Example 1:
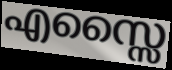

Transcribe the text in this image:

എസ്സൈ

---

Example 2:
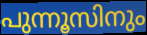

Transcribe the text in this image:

പുന്നൂസിനും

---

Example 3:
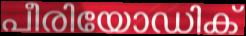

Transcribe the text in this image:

പീരിയോഡിക്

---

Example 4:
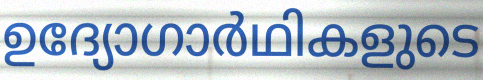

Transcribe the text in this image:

ഉദ്യോഗാർഥികളുടെ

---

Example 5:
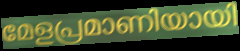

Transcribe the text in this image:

മേളപ്രമാണിയായി